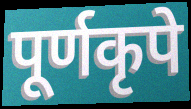
पूर्णकृपे